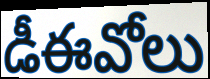
డీఈవోలు